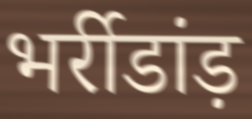
भर्रीडांड़